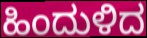
ಹಿಂದುಳಿದ